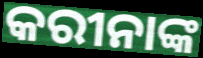
କରୀନାଙ୍କ